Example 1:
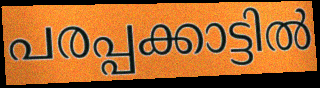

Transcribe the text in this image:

പരപ്പക്കാട്ടിൽ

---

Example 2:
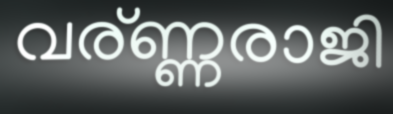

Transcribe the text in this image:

വര്ണ്ണരാജി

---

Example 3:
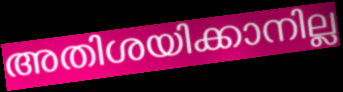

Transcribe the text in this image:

അതിശയിക്കാനില്ല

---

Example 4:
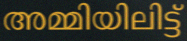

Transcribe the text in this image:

അമ്മിയിലിട്ട്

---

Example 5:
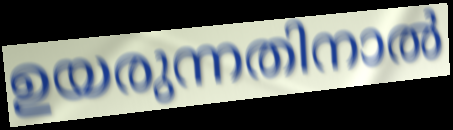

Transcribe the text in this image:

ഉയരുന്നതിനാൽ